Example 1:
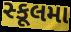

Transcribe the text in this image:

સ્કૂલમા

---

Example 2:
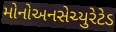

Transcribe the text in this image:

મોનોઅનસેચ્યુરેટેડ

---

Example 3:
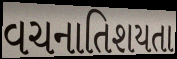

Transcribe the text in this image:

વચનાતિશયતા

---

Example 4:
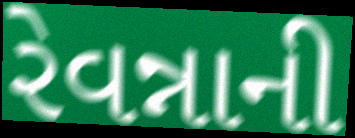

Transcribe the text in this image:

રેવન્નાની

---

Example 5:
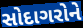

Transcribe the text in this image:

સોદાગરોને